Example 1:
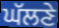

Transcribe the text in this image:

ਘੱਲਣੇ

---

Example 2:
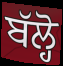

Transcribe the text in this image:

ਬੱਲ੍ਹੋ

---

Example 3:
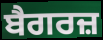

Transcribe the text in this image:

ਬੈਗਰਜ਼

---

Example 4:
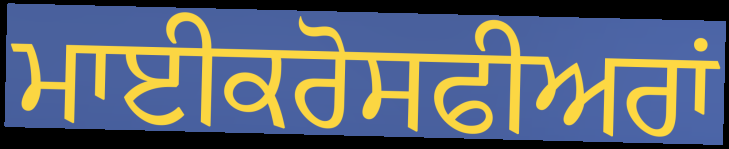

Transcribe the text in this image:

ਮਾਈਕਰੋਸਫੀਅਰਾਂ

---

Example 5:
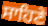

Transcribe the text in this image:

ਸਾਹਿਣੇ